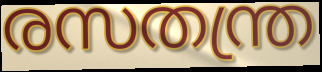
രസതന്ത്ര